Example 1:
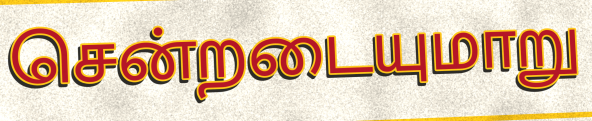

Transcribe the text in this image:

சென்றடையுமாறு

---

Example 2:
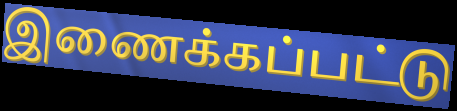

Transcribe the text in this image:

இணைக்கப்பட்டு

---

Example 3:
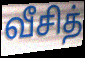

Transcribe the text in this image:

வீசித்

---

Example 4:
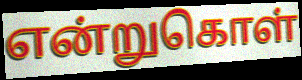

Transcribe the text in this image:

என்றுகொள்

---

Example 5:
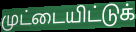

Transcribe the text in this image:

முட்டையிட்டுக்